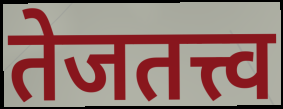
तेजतत्त्व